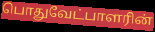
பொதுவேட்பாளரின்